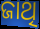
ଜାଥି